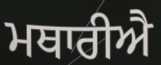
ਮਥਾਰੀਐ